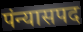
पंन्यासपद